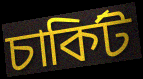
চাৰ্কিট